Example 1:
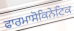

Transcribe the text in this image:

ਫਾਰਮਾਸੋਕਿਨੇਟਿਕ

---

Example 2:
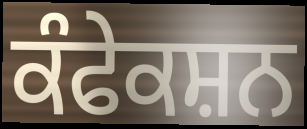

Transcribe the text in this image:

ਕੰਫੇਕਸ਼ਨ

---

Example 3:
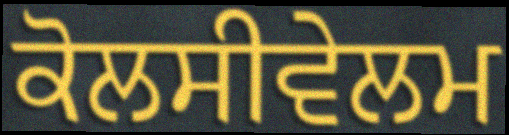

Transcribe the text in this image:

ਕੋਲਸੀਵੇਲਮ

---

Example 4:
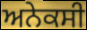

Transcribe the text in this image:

ਅਨੇਕਸੀ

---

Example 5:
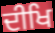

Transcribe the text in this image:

ਦੀਖਿ